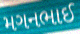
મગનભાઈ